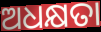
ଅଧକ୍ଷତା